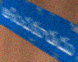
ఆశించకూడదు